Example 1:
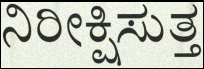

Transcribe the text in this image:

ನಿರೀಕ್ಷಿಸುತ್ತ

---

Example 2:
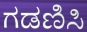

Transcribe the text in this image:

ಗಡಣಿಸಿ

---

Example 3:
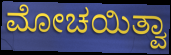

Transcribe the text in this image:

ಮೋಚಯಿತ್ವಾ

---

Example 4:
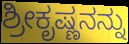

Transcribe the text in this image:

ಶ್ರೀಕೃಷ್ಣನನ್ನು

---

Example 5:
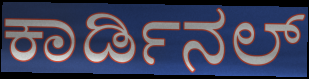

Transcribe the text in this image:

ಕಾರ್ಡಿನಲ್